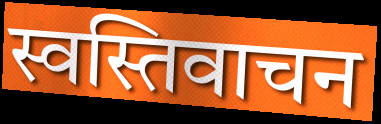
स्वस्तिवाचन